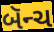
બૅન્ચ